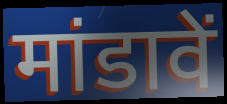
मांडावें